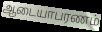
ஆடையாபரணம்